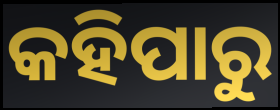
କହିପାରୁ